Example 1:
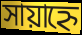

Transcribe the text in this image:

সায়াহ্নে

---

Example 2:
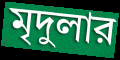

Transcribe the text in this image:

মৃদুলার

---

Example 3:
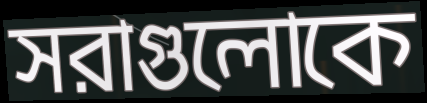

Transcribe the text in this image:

সরাগুলোকে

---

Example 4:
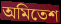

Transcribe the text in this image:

অমিতেশ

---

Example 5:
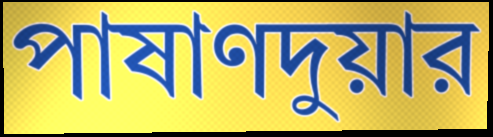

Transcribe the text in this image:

পাষাণদুয়ার